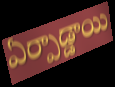
ఏర్పాడ్డాయి